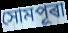
সোমপূৰা